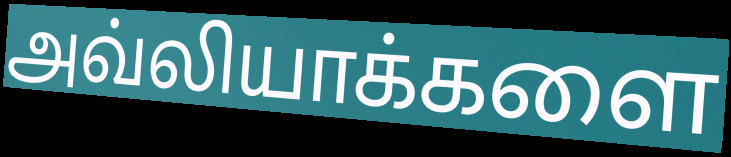
அவ்லியாக்களை